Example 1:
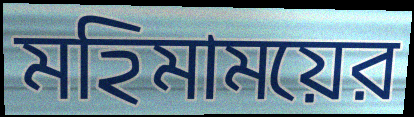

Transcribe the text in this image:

মহিমাময়ের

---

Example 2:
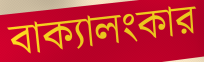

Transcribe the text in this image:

বাক্যালংকার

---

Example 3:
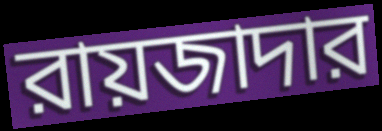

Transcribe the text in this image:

রায়জাদার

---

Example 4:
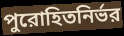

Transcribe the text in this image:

পুরোহিতনির্ভর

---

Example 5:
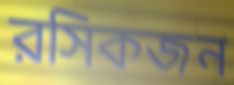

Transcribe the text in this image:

রসিকজন